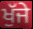
ਖੁੱਜੇ